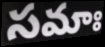
సమాః